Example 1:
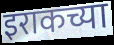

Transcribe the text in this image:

इराकच्या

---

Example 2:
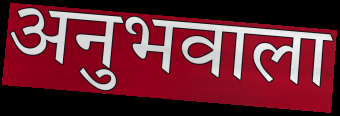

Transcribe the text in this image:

अनुभवाला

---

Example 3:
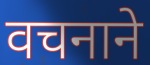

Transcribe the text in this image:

वचनाने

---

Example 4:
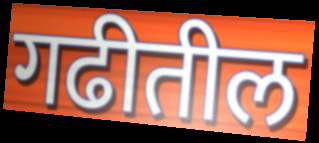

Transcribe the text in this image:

गढीतील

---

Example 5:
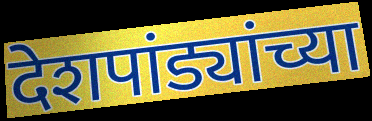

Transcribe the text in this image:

देशपांड्यांच्या